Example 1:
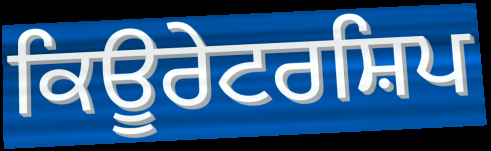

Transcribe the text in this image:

ਕਿਊਰੇਟਰਸ਼ਿਪ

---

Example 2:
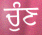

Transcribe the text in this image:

ਚੁੰਣ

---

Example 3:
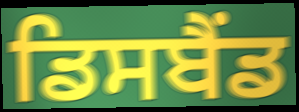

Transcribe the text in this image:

ਡਿਸਬੈਂਡ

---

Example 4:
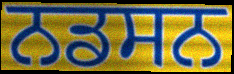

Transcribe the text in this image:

ਨਡਸਨ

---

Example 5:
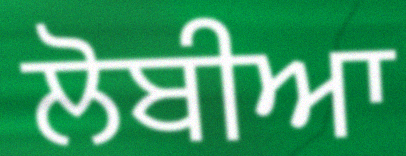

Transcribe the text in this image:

ਲੋਬੀਆ